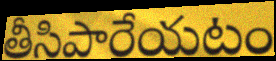
తీసిపారేయటం